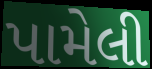
પામેલી